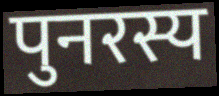
पुनरस्य